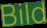
Bild